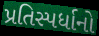
પ્રતિસ્પર્ધાનો